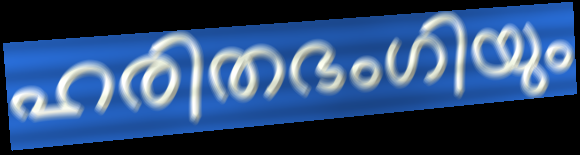
ഹരിതഭംഗിയും